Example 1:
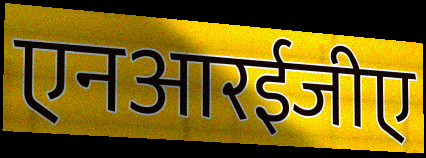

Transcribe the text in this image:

एनआरईजीए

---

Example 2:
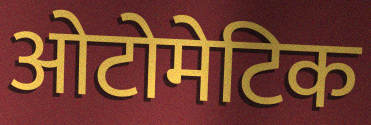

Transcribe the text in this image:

ओटोमेटिक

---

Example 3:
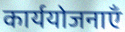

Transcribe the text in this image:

कार्ययोजनाएँ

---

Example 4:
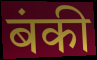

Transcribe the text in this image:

बंकी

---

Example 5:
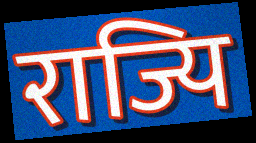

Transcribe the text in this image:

राज्यि